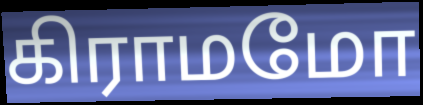
கிராமமோ